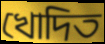
খোদিত